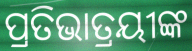
ପ୍ରତିଭାତ୍ରୟୀଙ୍କ